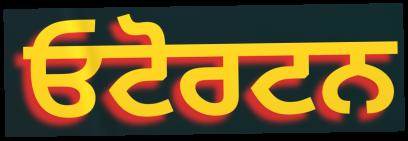
ਓਟੋਰਟਨ